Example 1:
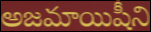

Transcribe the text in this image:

అజమాయిషీని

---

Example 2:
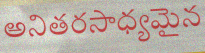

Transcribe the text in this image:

అనితరసాధ్యమైన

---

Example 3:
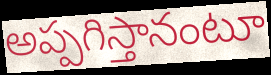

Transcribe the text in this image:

అప్పగిస్తానంటూ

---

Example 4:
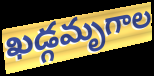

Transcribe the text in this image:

ఖడ్గమృగాల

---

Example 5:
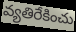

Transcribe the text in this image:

వ్యతిరేకించు